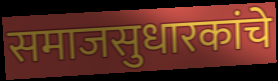
समाजसुधारकांचे